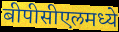
बीपीसीएलमध्ये